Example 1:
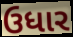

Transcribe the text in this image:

ઉધાર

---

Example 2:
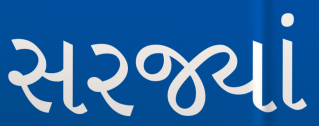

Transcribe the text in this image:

સરજ્યાં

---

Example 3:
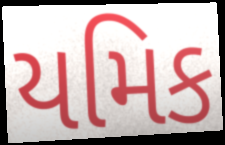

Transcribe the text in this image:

યમિક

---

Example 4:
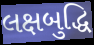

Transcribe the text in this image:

લક્ષબુદ્ધિ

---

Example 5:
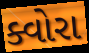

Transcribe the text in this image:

ક્વોરા